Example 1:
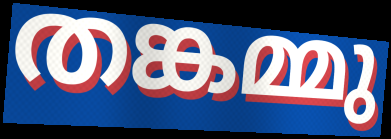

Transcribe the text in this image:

തങ്കമ്മു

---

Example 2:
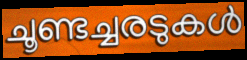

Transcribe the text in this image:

ചൂണ്ടച്ചരടുകൾ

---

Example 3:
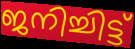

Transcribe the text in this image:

ജനിച്ചിട്ട്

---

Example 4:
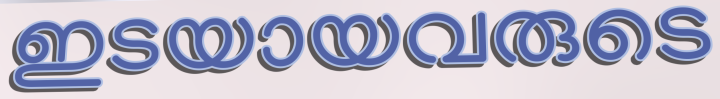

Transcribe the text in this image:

ഇടയായവരുടെ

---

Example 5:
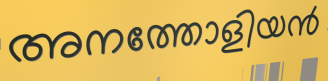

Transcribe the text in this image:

അനത്തോളിയൻ